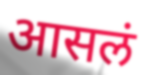
आसलं